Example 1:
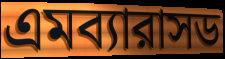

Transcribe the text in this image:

এমব্যারাসড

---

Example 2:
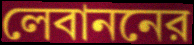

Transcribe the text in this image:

লেবাননের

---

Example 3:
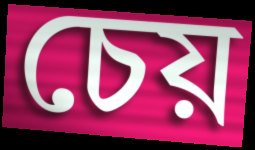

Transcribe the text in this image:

চেয়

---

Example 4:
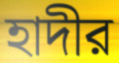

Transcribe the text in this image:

হাদীর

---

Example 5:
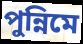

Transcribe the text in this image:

পুন্নিমে